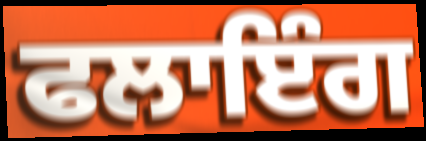
ਫਲਾਇੰਗ